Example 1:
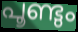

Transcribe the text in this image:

പൂണ്ടും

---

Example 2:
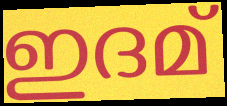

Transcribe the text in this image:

ഇദമ്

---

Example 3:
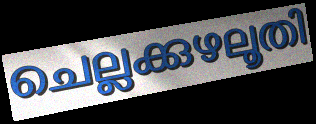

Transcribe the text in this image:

ചെല്ലക്കുഴലൂതി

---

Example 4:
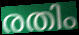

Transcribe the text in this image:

രതിം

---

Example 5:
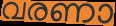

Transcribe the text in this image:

വരണാ